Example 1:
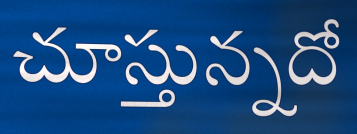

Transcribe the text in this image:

చూస్తున్నదో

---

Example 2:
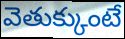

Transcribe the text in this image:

వెతుక్కుంటే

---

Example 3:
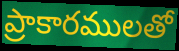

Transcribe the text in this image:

ప్రాకారములతో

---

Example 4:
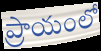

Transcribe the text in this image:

ప్రాయంలో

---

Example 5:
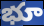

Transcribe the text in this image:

భూ